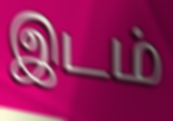
இடம்